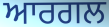
ਆਰਗਲ